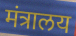
मंत्रालय